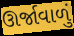
ઊર્જાવાળું